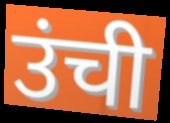
उंची